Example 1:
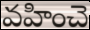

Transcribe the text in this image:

వహించె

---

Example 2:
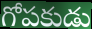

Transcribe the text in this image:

గోపకుడు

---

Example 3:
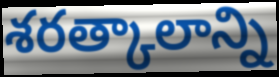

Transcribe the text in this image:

శరత్కాలాన్ని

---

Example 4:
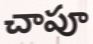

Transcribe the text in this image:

చాపూ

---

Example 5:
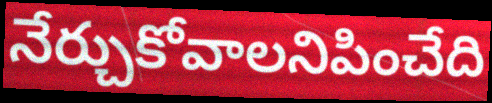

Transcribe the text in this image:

నేర్చుకోవాలనిపించేది